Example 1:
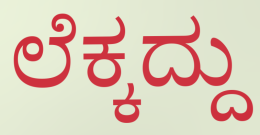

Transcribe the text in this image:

ಲೆಕ್ಕದ್ದು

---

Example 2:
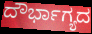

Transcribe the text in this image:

ದೌರ್ಭಾಗ್ಯದ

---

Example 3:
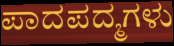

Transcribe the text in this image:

ಪಾದಪದ್ಮಗಳು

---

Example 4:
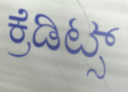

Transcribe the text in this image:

ಕ್ರೆಡಿಟ್ಸ್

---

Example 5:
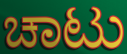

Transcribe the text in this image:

ಚಾಟು